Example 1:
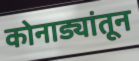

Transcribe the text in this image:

कोनाड्यांतून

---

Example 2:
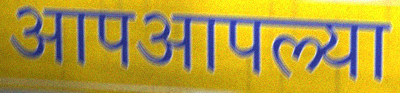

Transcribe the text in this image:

आपआपल्या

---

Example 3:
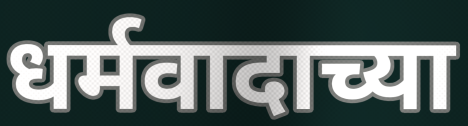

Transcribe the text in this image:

धर्मवादाच्या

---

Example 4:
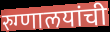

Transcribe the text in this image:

रुग्णालयांची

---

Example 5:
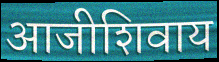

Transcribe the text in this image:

आजीशिवाय